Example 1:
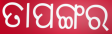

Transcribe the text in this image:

ତାପଙ୍ଗର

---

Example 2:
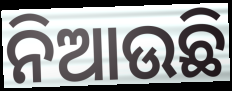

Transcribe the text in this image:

ନିଆଉଛି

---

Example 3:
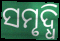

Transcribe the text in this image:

ସମୃଦ୍ଧି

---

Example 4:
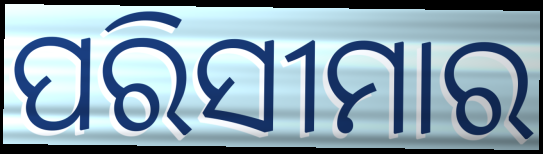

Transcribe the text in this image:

ପରିସୀମାର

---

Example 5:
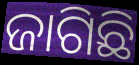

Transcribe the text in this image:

ଜାଗିଛି